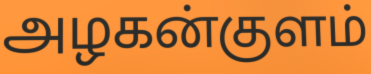
அழகன்குளம்